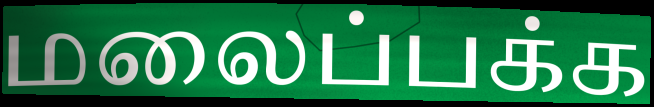
மலைப்பக்க